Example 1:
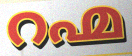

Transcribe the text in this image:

റഹ്മ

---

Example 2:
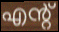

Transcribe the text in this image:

എന്റ്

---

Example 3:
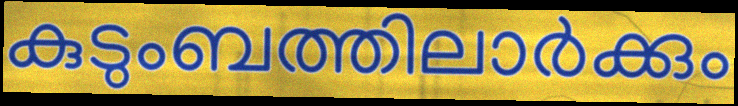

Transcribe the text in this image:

കുടുംബത്തിലാർക്കും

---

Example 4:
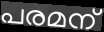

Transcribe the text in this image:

പരമന്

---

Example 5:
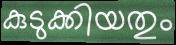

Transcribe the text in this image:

കുടുക്കിയതും